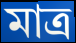
মাত্র